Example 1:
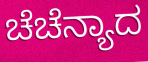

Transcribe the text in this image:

ಚೆಚೆನ್ಯಾದ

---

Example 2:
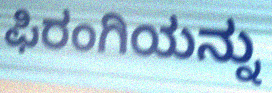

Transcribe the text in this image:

ಫಿರಂಗಿಯನ್ನು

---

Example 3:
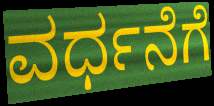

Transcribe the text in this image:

ವರ್ಧನೆಗೆ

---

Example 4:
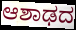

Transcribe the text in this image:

ಆಶಾಢದ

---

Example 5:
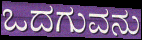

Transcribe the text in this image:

ಒದಗುವನು